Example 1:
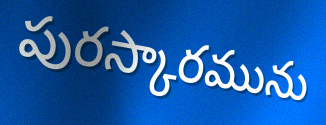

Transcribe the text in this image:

పురస్కారమును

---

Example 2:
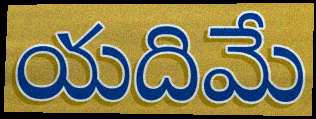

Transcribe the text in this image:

యదిమే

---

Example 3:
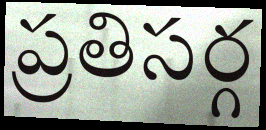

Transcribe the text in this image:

ప్రతిసర్గ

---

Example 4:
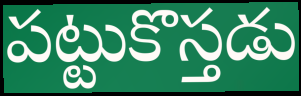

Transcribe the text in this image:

పట్టుకొస్తడు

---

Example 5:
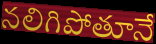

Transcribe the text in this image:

నలిగిపోతూనే